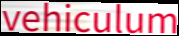
vehiculum